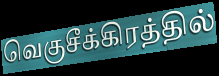
வெகுசீக்கிரத்தில்